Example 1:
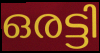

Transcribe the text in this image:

ഒരട്ടി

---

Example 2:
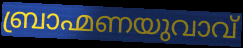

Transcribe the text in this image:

ബ്രാഹ്മണയുവാവ്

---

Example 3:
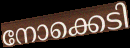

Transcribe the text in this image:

നോക്കെടി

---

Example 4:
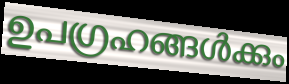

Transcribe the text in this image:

ഉപഗ്രഹങ്ങൾക്കും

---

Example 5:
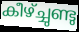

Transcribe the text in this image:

കീഴ്ച്ചുണ്ടു